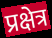
प्रक्षेत्र